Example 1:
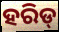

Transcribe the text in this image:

ହରିଡ୍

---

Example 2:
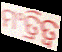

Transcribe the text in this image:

ମଂତ୍ରିତ୍ୱ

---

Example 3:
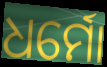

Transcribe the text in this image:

ଧର୍ମୋ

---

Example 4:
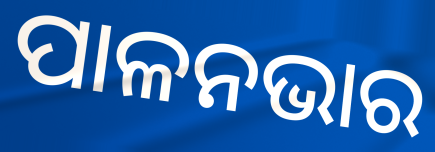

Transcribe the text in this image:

ପାଳନଭାର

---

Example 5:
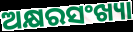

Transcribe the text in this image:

ଅକ୍ଷରସଂଖ୍ୟା